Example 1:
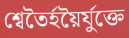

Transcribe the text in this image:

শ্বেতৈর্হয়ৈর্যুক্তে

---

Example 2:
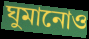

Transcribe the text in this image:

ঘুমানোও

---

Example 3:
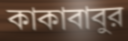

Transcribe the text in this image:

কাকাবাবুর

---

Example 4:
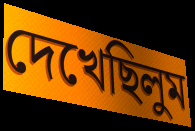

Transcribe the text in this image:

দেখেছিলুম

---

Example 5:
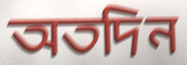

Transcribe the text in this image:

অতদিন